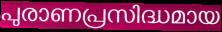
പുരാണപ്രസിദ്ധമായ